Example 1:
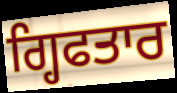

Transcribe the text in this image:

ਗ੍ਹਿਫਤਾਰ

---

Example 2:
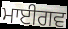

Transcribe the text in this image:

ਮਾਈਗਵ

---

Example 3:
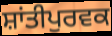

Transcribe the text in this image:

ਸ਼ਾਂਤੀਪੁਰਵਕ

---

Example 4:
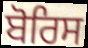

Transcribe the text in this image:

ਬੋਰਿਸ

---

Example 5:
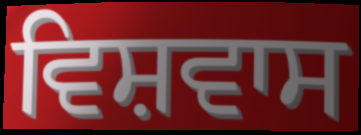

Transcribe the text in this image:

ਵਿਸ਼ਵਾਸ